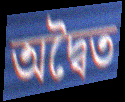
অদ্বৈত